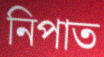
নিপাত